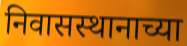
निवासस्थानाच्या